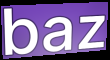
baz